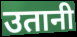
उतानी